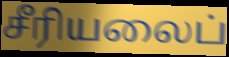
சீரியலைப்